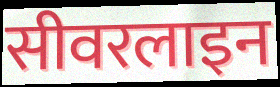
सीवरलाइन